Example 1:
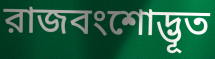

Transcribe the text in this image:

রাজবংশোদ্ভূত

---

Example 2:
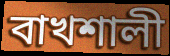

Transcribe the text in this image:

বাখশালী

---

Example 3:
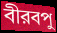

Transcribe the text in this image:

বীরবপু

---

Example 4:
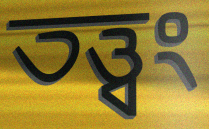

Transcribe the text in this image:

তত্ত্বং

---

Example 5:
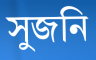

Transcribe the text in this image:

সুজনি